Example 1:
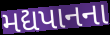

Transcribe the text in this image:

મદ્યપાનના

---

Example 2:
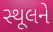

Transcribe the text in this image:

સ્થૂલને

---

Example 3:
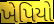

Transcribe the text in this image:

ખેપિયો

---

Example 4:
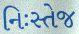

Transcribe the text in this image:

નિઃસ્તેજ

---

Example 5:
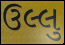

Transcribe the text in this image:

ઉલ્લુ